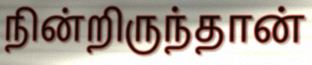
நின்றிருந்தான்